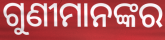
ଗୁଣୀମାନଙ୍କର